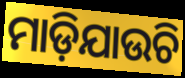
ମାଡ଼ିଯାଉଚି